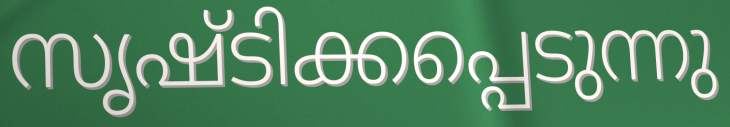
സൃഷ്ടിക്കപ്പെടുന്നു